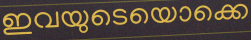
ഇവയുടെയൊക്കെ